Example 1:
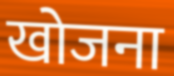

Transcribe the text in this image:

खोजना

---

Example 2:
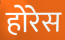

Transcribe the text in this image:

होरेस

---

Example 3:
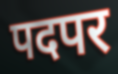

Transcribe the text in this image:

पदपर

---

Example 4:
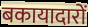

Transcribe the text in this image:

बकायादारों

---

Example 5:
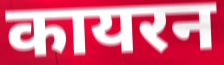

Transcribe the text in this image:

कायरन